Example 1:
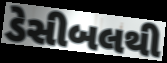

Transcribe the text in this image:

ડેસીબલથી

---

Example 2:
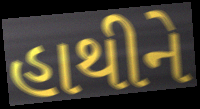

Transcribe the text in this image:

હાથીને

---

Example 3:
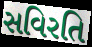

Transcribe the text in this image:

સવિરતિ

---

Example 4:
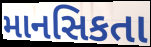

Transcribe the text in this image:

માનસિકતા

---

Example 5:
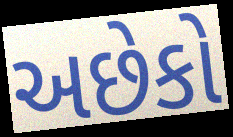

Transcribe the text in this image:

અછેકો